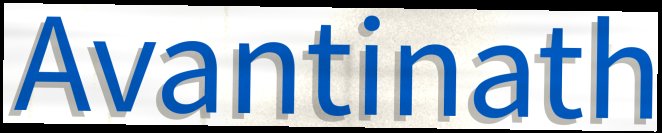
Avantinath